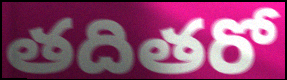
తదితరో